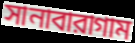
সানাবারাগাম